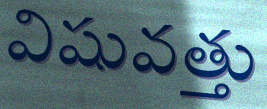
విషువత్తు